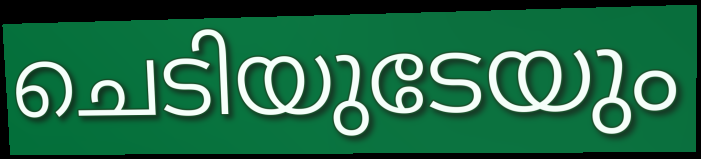
ചെടിയുടേയും